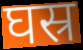
घस्र